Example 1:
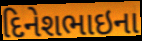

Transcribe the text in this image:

દિનેશભાઇના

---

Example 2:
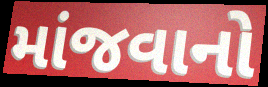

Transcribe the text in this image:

માંજવાનો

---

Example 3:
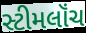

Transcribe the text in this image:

સ્ટીમલૉંચ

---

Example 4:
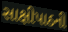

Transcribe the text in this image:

સાક્ષીપાઠની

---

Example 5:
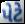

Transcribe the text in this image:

પેટે